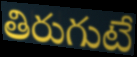
తిరుగుటే